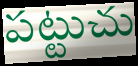
పట్టుచు